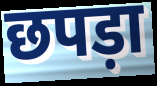
छपड़ा